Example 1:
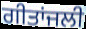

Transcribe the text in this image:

ਗੀਤਾਂਜਲੀ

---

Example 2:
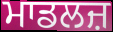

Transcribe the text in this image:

ਮਾਡਲਜ਼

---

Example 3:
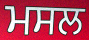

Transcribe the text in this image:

ਮਸਲ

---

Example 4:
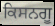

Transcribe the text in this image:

ਕਿਸਨਗੂ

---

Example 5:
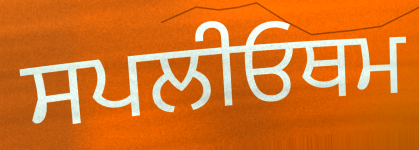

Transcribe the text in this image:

ਸਪਲੀਓਥਮ